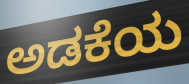
ಅಡಕೆಯ